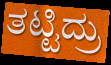
ತಟ್ಟಿದ್ರು